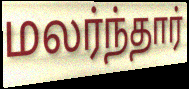
மலர்ந்தார்